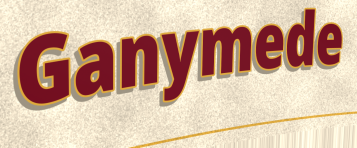
Ganymede